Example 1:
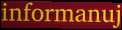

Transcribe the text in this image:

informanuj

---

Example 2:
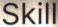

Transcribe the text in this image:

Skill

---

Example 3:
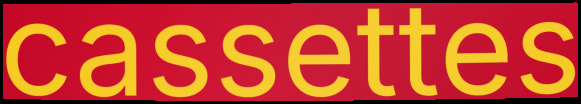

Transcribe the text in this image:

cassettes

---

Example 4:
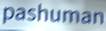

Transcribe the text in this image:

pashuman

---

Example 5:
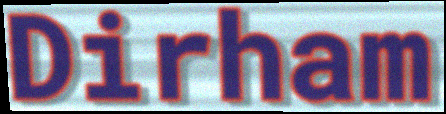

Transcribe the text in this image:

Dirham